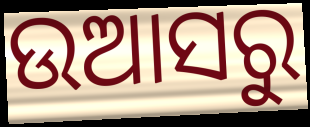
ଉଆସରୁ